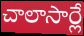
చాలాసార్లే